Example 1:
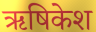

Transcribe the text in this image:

ऋषिकेश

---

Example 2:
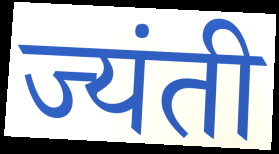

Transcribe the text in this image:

ज्यंती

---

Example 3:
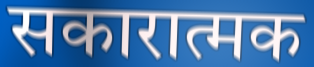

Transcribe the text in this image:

सकारात्मक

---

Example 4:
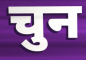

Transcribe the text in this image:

चुन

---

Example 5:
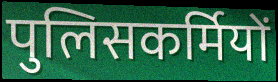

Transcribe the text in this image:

पुलिसकर्मियों